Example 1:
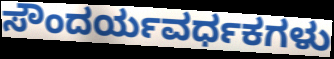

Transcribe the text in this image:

ಸೌಂದರ್ಯವರ್ಧಕಗಳು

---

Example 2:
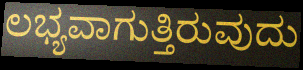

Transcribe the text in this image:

ಲಭ್ಯವಾಗುತ್ತಿರುವುದು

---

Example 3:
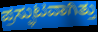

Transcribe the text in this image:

ಪ್ರಸ್ಫುಟವಾಗಿತ್ತು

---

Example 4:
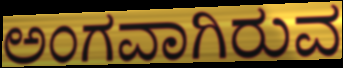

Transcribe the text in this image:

ಅಂಗವಾಗಿರುವ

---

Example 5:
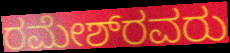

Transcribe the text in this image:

ರಮೇಶ್‌ರವರು